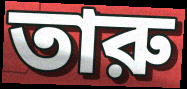
তারু